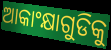
ଆକାଂକ୍ଷାଗୁଡିକୁ